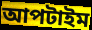
আপটাইম